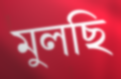
মুলছি